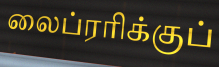
லைப்ரரிக்குப்